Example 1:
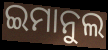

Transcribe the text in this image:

ଇମାନୁଲ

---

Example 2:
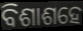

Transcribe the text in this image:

ବିଶାଶହେ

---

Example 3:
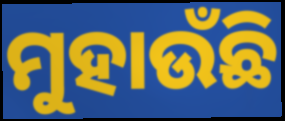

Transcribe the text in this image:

ମୁହାଉଁଛି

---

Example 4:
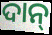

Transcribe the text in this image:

ଦାନ୍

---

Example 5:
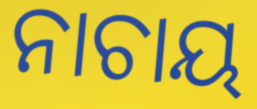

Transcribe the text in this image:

ନାଚାୟ